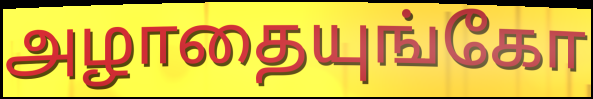
அழாதையுங்கோ